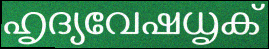
ഹൃദ്യവേഷധൃക്